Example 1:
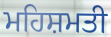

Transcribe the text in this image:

ਮਹਿਸ਼ਮਤੀ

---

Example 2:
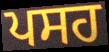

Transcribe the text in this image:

ਪਸਹ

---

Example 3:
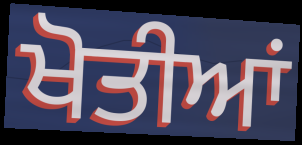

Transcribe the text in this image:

ਖੋਤੀਆਂ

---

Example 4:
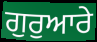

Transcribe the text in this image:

ਗੁਰੁਆਰੇ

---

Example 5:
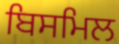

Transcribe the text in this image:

ਬਿਸਮਿਲ